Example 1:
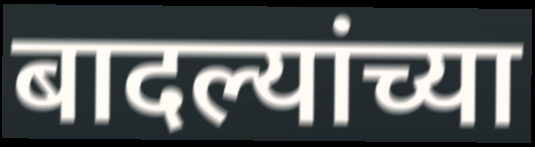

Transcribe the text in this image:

बादल्यांच्या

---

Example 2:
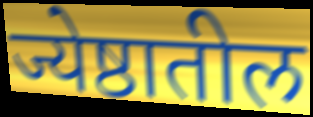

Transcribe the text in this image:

ज्येष्ठातील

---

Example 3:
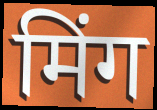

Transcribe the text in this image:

मिंग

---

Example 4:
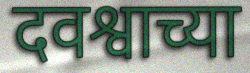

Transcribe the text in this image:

दवश्वाच्या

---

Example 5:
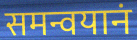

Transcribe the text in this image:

समन्वयानं